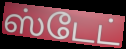
ஸ்டேட்